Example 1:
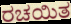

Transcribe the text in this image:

ರಚಯಿತ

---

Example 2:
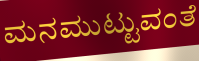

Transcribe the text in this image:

ಮನಮುಟ್ಟುವಂತೆ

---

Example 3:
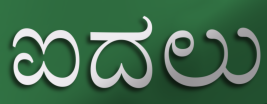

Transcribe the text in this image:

ಐದಲು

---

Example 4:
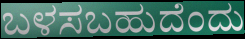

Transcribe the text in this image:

ಬಳಸಬಹುದೆಂದು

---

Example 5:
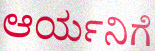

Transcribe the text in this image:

ಆರ್ಯನಿಗೆ